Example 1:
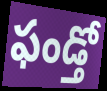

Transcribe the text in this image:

ఫండ్తో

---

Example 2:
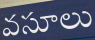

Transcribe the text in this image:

వసూలు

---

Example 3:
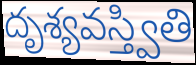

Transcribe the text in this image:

దృశ్యవస్త్వితి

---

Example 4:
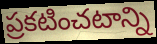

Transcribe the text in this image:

ప్రకటించటాన్ని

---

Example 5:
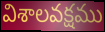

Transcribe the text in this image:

విశాలవక్షము